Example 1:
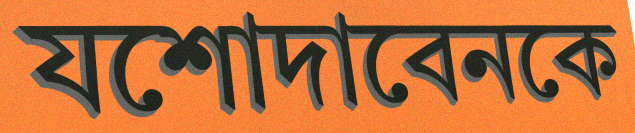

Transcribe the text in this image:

যশোদাবেনকে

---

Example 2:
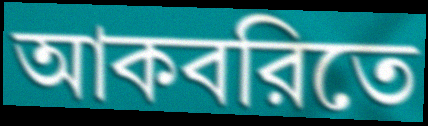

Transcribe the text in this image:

আকবরিতে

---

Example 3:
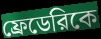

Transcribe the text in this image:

ফ্রেডেরিকে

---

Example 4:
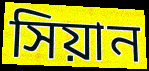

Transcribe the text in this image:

সিয়ান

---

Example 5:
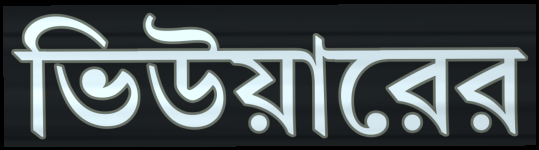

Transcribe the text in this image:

ভিউয়ারের